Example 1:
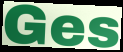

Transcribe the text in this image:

Ges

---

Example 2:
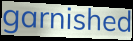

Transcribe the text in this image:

garnished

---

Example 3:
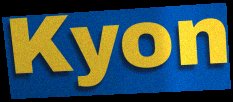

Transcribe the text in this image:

Kyon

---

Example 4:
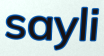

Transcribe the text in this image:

sayli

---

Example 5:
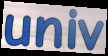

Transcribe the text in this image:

univ